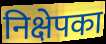
निक्षेपका